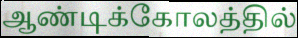
ஆண்டிக்கோலத்தில்